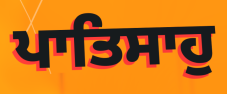
ਪਾਤਿਸਾਹੁ